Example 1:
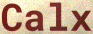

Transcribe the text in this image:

Calx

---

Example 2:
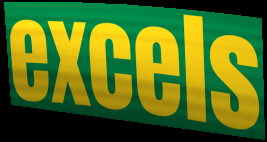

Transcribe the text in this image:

excels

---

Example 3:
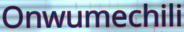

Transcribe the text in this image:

Onwumechili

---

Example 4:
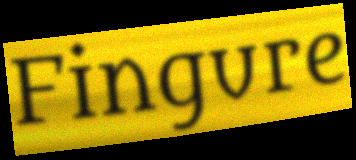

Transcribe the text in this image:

Fingure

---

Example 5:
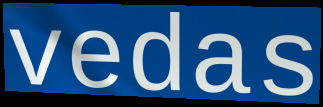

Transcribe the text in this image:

vedas